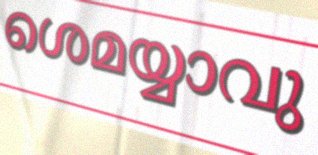
ശെമയ്യാവു